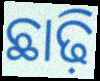
ଛାଢ଼ି